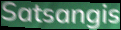
Satsangis